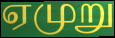
ஏமுறு